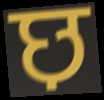
छ़